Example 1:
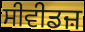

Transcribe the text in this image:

ਸੀਵੀਡਜ਼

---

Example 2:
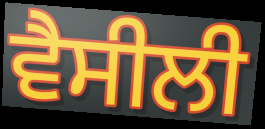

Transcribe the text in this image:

ਵੈਸੀਲੀ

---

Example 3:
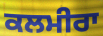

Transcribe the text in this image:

ਕਲਮੀਰਾ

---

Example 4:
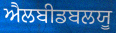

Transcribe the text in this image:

ਐਲਬੀਡਬਲਯੂ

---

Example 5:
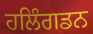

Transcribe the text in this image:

ਹਲਿੰਗਡਨ